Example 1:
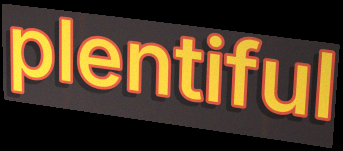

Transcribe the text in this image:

plentiful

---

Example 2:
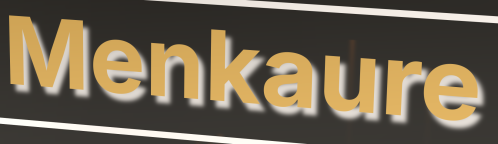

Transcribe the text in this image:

Menkaure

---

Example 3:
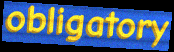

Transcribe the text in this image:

obligatory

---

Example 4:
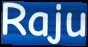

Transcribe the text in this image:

Raju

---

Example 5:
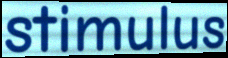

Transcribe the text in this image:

stimulus